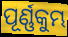
ପୂର୍ଣ୍ଣକୁମ୍ଭ